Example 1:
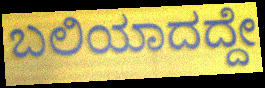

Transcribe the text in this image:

ಬಲಿಯಾದದ್ದೇ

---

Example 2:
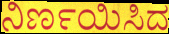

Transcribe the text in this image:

ನಿರ್ಣಯಿಸಿದ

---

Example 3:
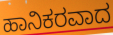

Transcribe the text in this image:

ಹಾನಿಕರವಾದ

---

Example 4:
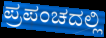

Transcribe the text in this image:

ಪ್ರಪಂಚದಲ್ಲಿ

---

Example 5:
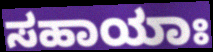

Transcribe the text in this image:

ಸಹಾಯಾಃ